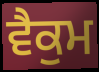
ਵੈਕੁਮ